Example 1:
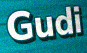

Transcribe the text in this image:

Gudi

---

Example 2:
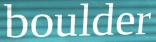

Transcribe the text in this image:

boulder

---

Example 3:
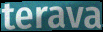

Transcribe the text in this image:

terava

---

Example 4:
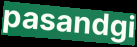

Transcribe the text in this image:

pasandgi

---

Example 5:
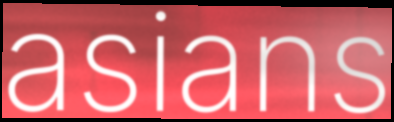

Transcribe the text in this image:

asians